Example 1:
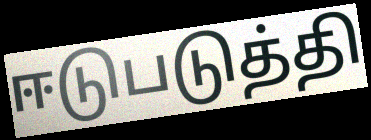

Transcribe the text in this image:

ஈடுபடுத்தி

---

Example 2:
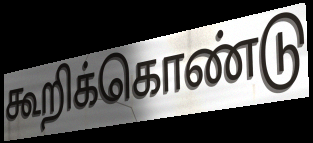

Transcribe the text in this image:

கூறிக்கொண்டு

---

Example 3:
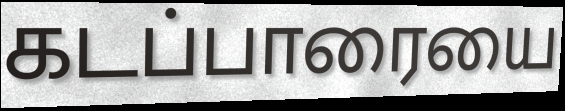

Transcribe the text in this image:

கடப்பாரையை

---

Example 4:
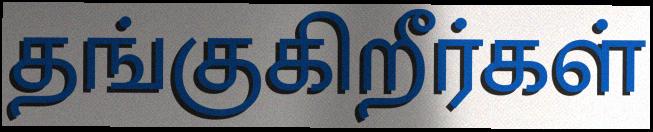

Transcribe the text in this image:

தங்குகிறீர்கள்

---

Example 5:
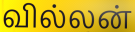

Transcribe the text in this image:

வில்லன்